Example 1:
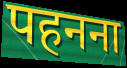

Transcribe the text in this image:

पहनना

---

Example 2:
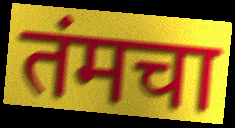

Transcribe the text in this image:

तंमचा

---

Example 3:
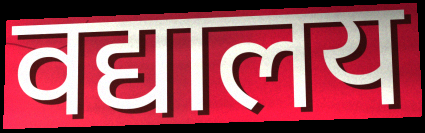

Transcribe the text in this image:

वद्यालय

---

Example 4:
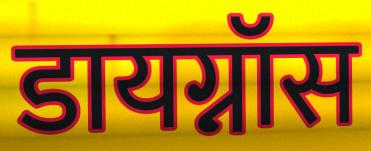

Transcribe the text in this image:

डायग्नॉस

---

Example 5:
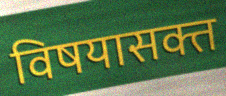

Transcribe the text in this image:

विषयासक्त